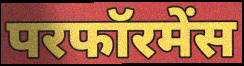
परफॉरमेंस